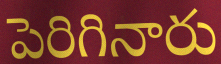
పెరిగినారు